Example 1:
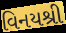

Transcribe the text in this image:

વિનયશ્રી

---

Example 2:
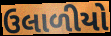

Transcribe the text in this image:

ઉલાળીયો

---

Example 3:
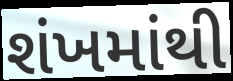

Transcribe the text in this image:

શંખમાંથી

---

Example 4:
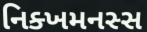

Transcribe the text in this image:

નિક્ખમનસ્સ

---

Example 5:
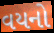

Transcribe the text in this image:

વયનો